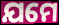
ଯମେ